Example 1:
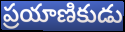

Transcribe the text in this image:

ప్రయాణికుడు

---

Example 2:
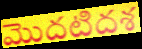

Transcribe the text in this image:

మొదటిదశ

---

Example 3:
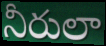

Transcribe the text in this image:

నీరులా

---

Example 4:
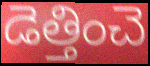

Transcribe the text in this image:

డెత్తించె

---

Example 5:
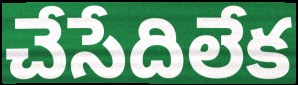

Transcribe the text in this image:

చేసేదిలేక